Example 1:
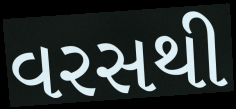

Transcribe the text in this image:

વરસથી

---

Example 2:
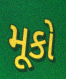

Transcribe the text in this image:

મૂકો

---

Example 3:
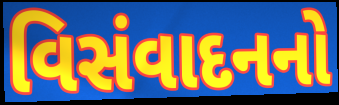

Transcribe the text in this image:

વિસંવાદનનો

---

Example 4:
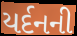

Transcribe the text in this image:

યર્દનની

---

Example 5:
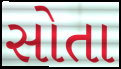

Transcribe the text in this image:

સોતા